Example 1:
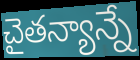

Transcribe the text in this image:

చైతన్యాన్నే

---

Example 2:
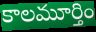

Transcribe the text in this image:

కాలమూర్తిం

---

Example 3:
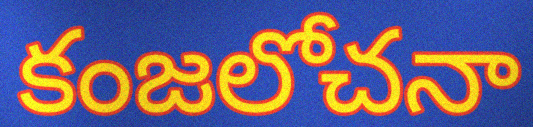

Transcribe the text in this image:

కంజలోచనా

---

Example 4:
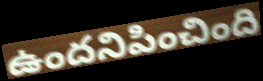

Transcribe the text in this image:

ఉందనిపించింది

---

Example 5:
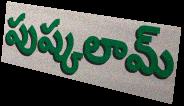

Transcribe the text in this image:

పుష్కలామ్